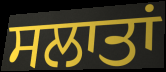
ਸਲਾਤਾਂ